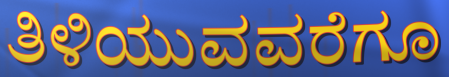
ತಿಳಿಯುವವರೆಗೂ